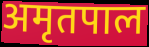
अमृतपाल